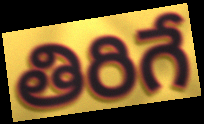
తిరిగే